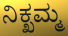
ನಿಕ್ಖಮ್ಮ